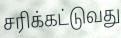
சரிக்கட்டுவது